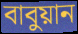
বাবুয়ান